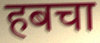
हबचा